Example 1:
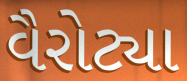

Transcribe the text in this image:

વૈરોટ્યા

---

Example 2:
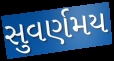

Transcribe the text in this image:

સુવર્ણમય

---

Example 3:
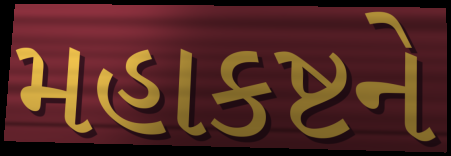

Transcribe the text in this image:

મહાકષ્ટને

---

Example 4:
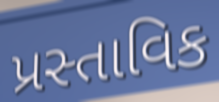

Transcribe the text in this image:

પ્રસ્તાવિક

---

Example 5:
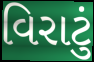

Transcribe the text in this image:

વિરાટું